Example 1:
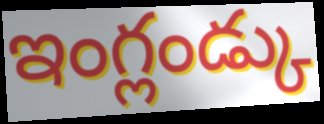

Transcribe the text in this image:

ఇంగ్లండ్కు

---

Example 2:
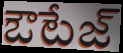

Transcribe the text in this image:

ఔటేజ్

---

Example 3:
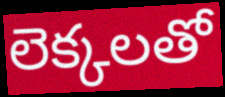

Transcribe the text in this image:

లెక్కలతో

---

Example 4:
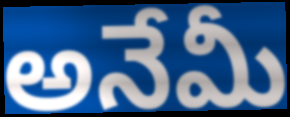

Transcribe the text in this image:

అనేమీ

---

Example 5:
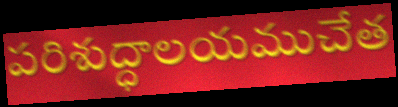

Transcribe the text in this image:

పరిశుద్ధాలయముచేత